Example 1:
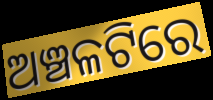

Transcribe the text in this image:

ଅଞ୍ଚଳଟିରେ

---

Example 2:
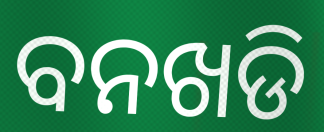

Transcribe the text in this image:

ବନଖଡି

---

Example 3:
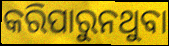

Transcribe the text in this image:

କରିପାରୁନଥୁବା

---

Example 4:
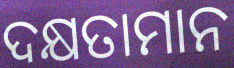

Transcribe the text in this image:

ଦକ୍ଷତାମାନ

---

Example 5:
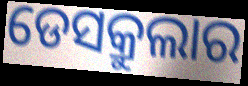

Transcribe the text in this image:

ଡେସକ୍ରୁଲାର